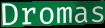
Dromas